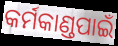
କର୍ମକାଣ୍ଡପାଇଁ